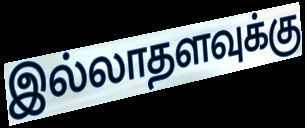
இல்லாதளவுக்கு